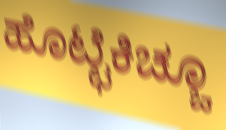
ಹೊಟ್ಟೆಕಿಚ್ಚೂ